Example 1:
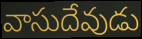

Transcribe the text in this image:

వాసుదేవుడు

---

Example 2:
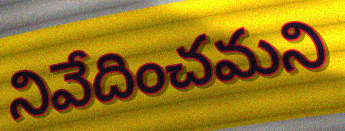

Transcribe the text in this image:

నివేదించమని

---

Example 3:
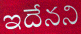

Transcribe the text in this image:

ఇదేనని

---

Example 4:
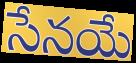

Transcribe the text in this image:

సేనయే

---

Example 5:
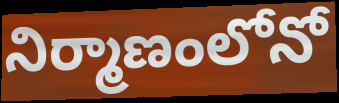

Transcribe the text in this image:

నిర్మాణంలోనో